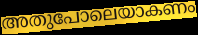
അതുപോലെയാകണം